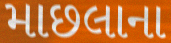
માછલાના